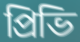
প্রিভি